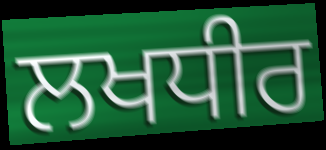
ਲਖਧੀਰ